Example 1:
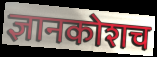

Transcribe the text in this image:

ज्ञानकोशच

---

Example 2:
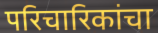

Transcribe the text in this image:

परिचारिकांचा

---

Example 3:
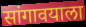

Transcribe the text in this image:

सांगावयाला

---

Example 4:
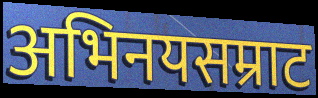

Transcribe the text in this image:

अभिनयसम्राट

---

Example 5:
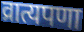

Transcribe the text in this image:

व्रात्यपणा